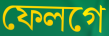
ফেলগে